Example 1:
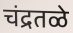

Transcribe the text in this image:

चंद्रतळे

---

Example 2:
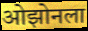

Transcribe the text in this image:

ओझोनला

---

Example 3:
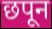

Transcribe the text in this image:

छपून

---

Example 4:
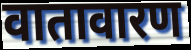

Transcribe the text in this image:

वातावारण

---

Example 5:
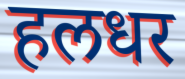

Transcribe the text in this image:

हलधर